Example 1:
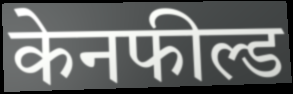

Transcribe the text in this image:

केनफील्ड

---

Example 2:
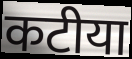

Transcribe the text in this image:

कटीया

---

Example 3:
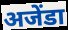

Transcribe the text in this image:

अजेंडा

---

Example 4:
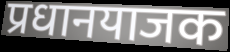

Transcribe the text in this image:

प्रधानयाजक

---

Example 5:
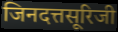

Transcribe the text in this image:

जिनदत्तसूरिजी